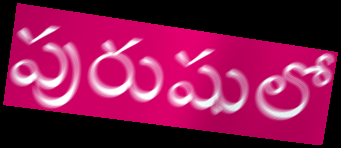
పురుషులో